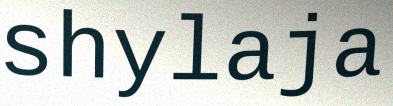
shylaja